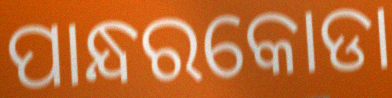
ପାନ୍ଧରକୋଡା